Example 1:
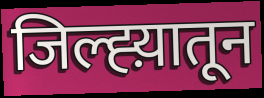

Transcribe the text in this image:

जिल्ह्य़ातून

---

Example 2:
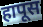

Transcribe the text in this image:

हापूस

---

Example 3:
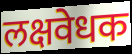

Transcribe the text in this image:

लक्षवेधक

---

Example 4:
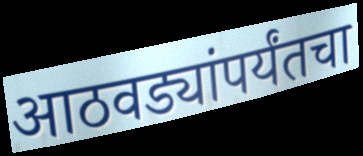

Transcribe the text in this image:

आठवड्यांपर्यंतचा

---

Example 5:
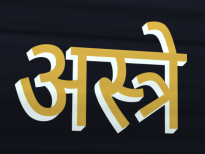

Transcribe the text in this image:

अस्त्रे